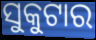
ସୁକୁଟାର